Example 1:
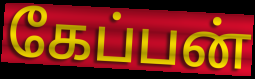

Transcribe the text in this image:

கேப்பன்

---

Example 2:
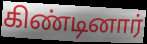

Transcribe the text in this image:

கிண்டினார்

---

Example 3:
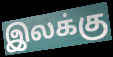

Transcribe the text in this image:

இலக்கு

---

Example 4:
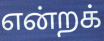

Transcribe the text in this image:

என்றக்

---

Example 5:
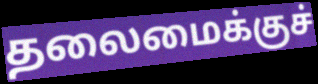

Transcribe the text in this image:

தலைமைக்குச்